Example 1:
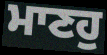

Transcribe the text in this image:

ਮਾਣਹੁ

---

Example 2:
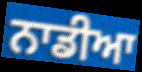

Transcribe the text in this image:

ਨਾਡੀਆ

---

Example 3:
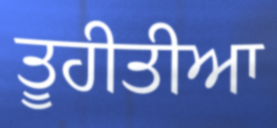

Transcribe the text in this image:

ਤੂਹੀਤੀਆ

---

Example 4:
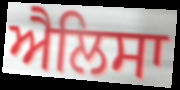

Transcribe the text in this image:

ਐਲਿਸਾ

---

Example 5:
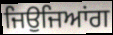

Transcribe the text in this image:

ਜਿਉਜਿਆਂਗ